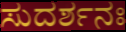
ಸುದರ್ಶನಃ